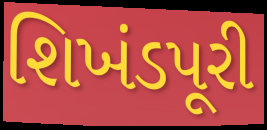
શિખંડપૂરી